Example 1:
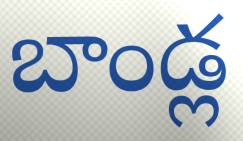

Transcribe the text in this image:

బాండ్ల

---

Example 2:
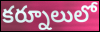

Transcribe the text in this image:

కర్నూలులో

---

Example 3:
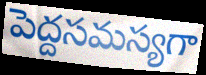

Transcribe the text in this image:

పెద్దసమస్యగా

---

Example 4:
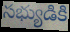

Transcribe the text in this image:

సభ్యుడికి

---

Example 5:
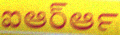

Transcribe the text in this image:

ఐఆర్ఆర్‍